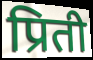
प्रिती